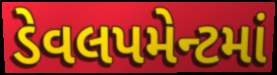
ડેવલપમેન્ટમાં